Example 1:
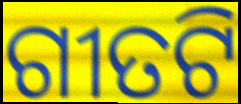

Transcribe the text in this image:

ଗୀତଟି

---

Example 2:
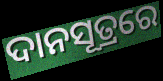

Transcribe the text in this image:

ଦାନସୂତ୍ରରେ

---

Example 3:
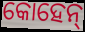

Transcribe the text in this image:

କୋହେନ୍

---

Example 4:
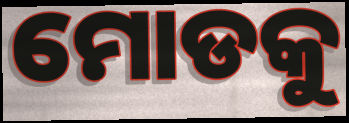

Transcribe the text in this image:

ମୋଡକୁ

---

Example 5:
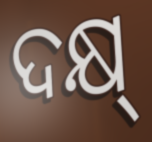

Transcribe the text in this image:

ଦକ୍ଷ୍